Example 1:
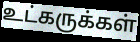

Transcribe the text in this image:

உட்கருக்கள்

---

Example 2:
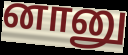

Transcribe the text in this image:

னானு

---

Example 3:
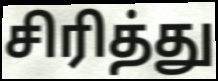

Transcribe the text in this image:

சிரித்து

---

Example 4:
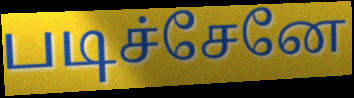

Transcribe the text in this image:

படிச்சேனே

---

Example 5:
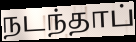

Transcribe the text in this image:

நடந்தாப்